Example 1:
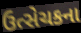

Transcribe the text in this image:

ઉત્સેચકના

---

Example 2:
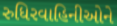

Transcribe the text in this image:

રુધિરવાહિનીઓને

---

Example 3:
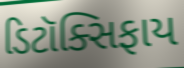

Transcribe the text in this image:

ડિટૉક્સિફાય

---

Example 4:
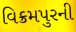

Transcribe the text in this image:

વિક્રમપુરની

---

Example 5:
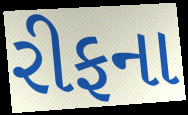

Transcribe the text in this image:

રીફના